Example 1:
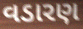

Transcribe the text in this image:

વડારણ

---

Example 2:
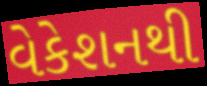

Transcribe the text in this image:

વેકેશનથી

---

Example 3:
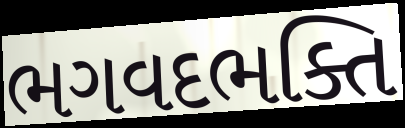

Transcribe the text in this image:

ભગવદભક્તિ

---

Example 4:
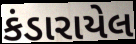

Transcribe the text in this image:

કંડારાયેલ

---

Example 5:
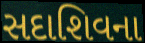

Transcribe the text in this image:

સદાશિવના